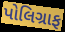
પોલિગ્રાફ